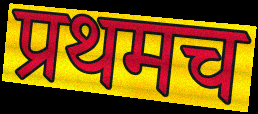
प्रथमच